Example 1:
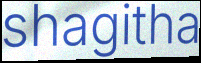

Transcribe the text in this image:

shagitha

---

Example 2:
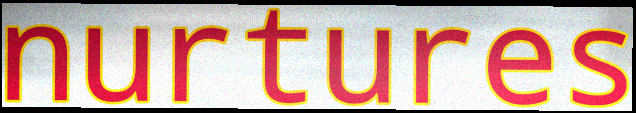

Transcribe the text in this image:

nurtures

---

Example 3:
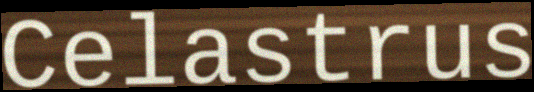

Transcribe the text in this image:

Celastrus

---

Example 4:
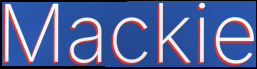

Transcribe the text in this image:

Mackie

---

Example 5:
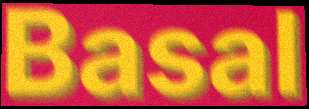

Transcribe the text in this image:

Basal